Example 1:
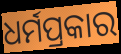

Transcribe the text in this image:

ଧର୍ମପ୍ରକାର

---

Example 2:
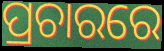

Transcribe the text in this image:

ପ୍ରଚାରରେ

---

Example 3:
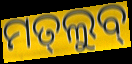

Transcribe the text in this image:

ମତ୍‌ଲୁବ୍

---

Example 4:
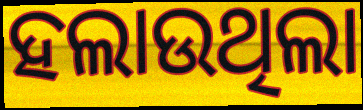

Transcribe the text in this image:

ହଲାଉଥିଲା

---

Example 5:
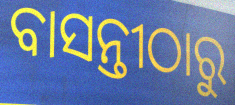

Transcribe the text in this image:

ବାସନ୍ତୀଠାରୁ